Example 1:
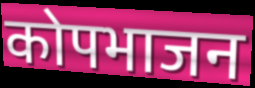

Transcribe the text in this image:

कोपभाजन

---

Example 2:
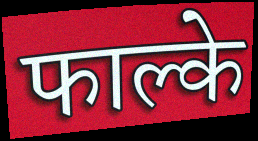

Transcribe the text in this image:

फाल्के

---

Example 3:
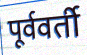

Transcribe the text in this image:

पूर्ववर्ती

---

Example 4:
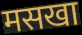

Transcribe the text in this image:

मसखा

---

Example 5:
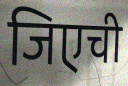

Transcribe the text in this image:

जिएची